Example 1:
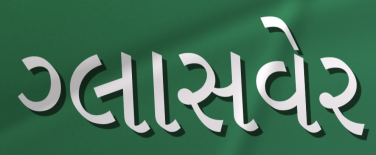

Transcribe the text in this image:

ગ્લાસવેર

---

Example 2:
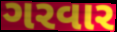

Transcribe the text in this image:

ગરવાર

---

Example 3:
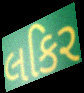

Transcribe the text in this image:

લકિર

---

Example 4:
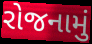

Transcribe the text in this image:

રોજનામું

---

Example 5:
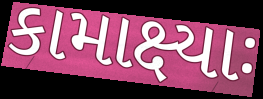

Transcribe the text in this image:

કામાક્ષ્યાઃ